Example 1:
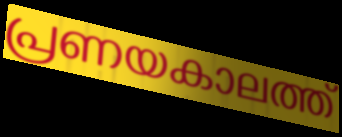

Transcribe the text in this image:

പ്രണയകാലത്ത്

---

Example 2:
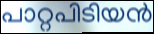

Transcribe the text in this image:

പാറ്റപിടിയൻ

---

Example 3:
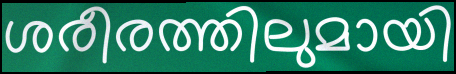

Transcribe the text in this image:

ശരീരത്തിലുമായി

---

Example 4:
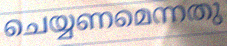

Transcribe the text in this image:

ചെയ്യണമെന്നതു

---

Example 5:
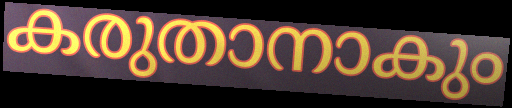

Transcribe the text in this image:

കരുതാനാകും